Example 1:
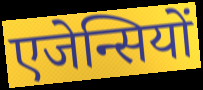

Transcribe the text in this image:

एजेन्सियों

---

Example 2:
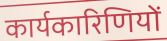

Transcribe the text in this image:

कार्यकारिणियों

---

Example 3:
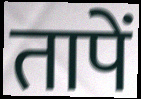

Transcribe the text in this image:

तापें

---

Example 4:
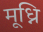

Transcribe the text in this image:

मूध्नि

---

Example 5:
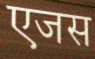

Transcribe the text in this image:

एजस